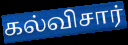
கல்விசார்